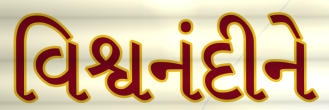
વિશ્વનંદીને